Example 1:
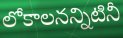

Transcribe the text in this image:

లోకాలనన్నిటినీ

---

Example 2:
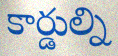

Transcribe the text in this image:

కార్డుల్ని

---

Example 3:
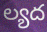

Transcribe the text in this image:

ల్యద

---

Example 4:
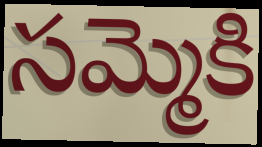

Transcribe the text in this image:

సమ్మెకి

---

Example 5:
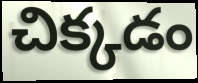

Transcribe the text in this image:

చిక్కడం